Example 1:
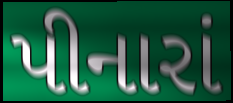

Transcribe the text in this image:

પીનારાં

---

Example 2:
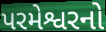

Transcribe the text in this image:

પરમેશ્વરનો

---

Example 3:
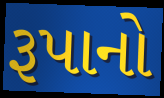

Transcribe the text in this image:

રૂપાનો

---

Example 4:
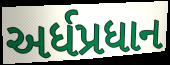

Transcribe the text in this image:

અર્ધપ્રધાન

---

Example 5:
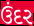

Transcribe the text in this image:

ઉંદર